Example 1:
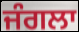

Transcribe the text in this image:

ਜੰਗਲਾ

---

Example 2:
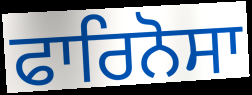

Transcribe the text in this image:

ਫਾਰਿਨੋਸਾ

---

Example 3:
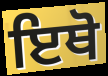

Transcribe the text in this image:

ਇਥੋ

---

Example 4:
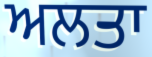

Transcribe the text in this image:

ਅਲਤਾ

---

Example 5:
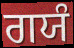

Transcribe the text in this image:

ਗਯੰ